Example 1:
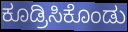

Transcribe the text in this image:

ಕೂಡ್ರಿಸಿಕೊಂಡು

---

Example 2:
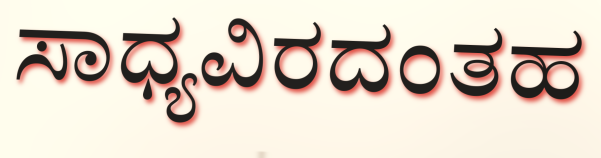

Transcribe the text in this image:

ಸಾಧ್ಯವಿರದಂತಹ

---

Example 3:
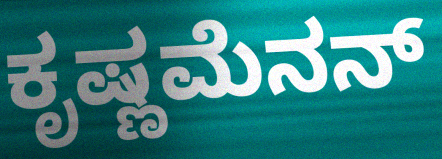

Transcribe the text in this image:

ಕೃಷ್ಣಮೆನನ್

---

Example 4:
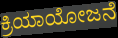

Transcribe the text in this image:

ಕ್ರಿಯಾಯೋಜನೆ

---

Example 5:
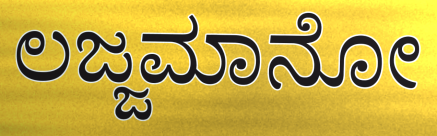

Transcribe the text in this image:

ಲಜ್ಜಮಾನೋ